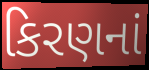
કિરણનાં